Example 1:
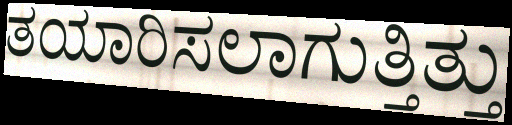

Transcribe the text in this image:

ತಯಾರಿಸಲಾಗುತ್ತಿತ್ತು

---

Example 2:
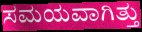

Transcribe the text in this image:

ಸಮಯವಾಗಿತ್ತು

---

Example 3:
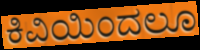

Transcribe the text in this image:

ಕಿವಿಯಿಂದಲೂ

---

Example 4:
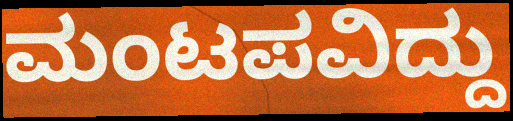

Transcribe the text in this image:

ಮಂಟಪವಿದ್ದು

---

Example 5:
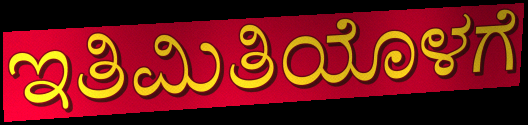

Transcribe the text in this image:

ಇತಿಮಿತಿಯೊಳಗೆ